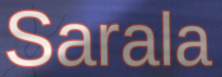
Sarala